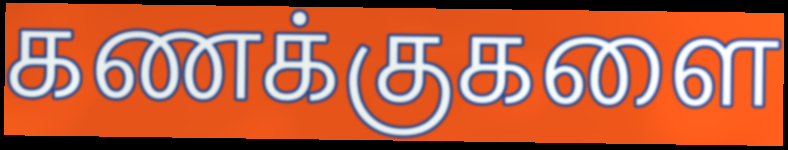
கணக்குகளை